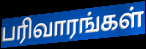
பரிவாரங்கள்